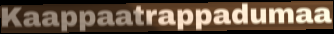
Kaappaatrappadumaa